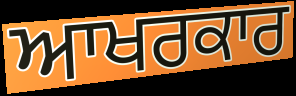
ਆਖਰਕਾਰ